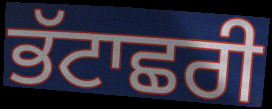
ਭੱਟਾਛਰੀ